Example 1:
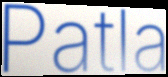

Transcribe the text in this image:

Patla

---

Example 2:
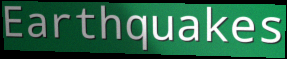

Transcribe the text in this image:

Earthquakes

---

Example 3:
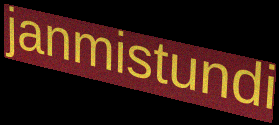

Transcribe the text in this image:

janmistundi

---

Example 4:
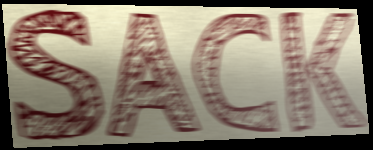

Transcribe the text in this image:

SACK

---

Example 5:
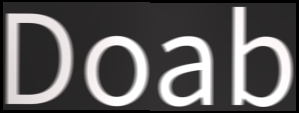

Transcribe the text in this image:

Doab